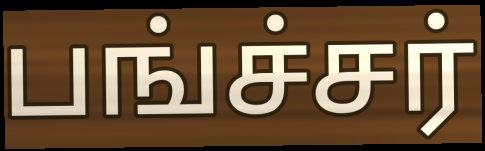
பங்ச்சர்